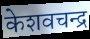
केशवचन्द्र